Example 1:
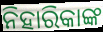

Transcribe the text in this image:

ନିହାରିକାଙ୍କ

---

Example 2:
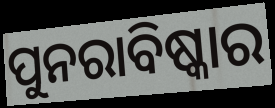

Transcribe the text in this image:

ପୁନରାବିଷ୍କାର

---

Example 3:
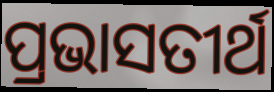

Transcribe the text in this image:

ପ୍ରଭାସତୀର୍ଥ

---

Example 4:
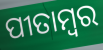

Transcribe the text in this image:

ପୀତାମ୍ବର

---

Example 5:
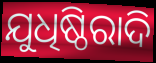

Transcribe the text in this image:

ଯୁଧିଷ୍ଠିରାଦି